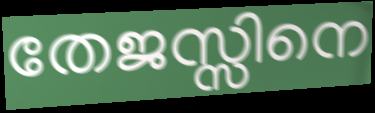
തേജസ്സിനെ